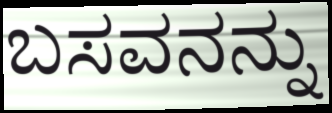
ಬಸವನನ್ನು